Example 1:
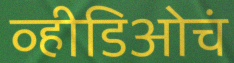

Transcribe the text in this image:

व्हीडिओचं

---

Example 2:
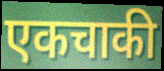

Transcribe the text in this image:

एकचाकी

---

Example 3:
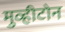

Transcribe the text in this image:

मुव्हीटोन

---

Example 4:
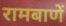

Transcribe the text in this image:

रामबाणें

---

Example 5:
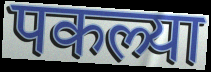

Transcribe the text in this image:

पकल्या